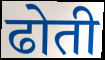
ढोती